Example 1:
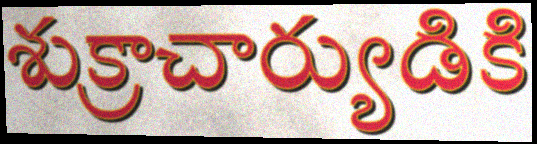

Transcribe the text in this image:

శుక్రాచార్యుడికి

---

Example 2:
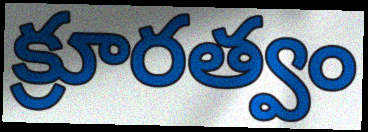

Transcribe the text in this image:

క్రూరత్వం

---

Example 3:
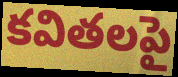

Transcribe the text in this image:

కవితలపై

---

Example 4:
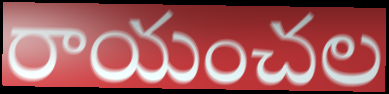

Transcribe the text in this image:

రాయంచల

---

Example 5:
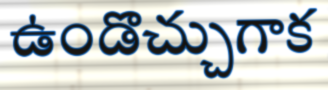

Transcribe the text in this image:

ఉండొచ్చుగాక